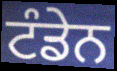
ਟੰਡੇਨ